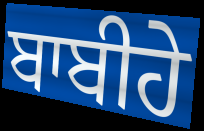
ਬਾਬੀਹੇ